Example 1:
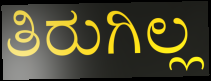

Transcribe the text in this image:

ತಿರುಗಿಲ್ಲ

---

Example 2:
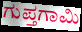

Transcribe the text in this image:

ಗುಪ್ತಗಾಮಿ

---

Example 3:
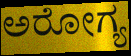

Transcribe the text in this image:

ಅರೋಗ್ಯ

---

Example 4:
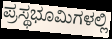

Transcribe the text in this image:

ಪ್ರಸ್ಥಭೂಮಿಗಳಲ್ಲಿ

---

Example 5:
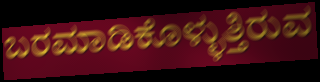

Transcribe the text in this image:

ಬರಮಾಡಿಕೊಳ್ಳುತ್ತಿರುವ